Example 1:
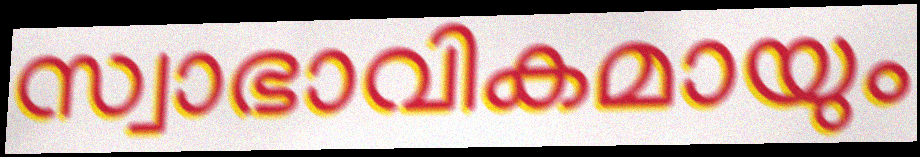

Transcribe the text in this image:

സ്വാഭാവികമായും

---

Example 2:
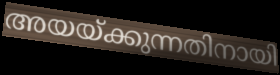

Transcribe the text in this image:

അയയ്ക്കുന്നതിനായി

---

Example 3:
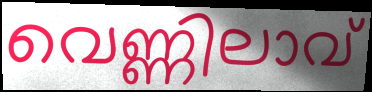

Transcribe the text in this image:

വെണ്ണിലാവ്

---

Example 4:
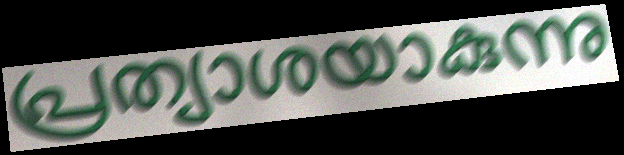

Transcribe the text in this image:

പ്രത്യാശയാകുന്നു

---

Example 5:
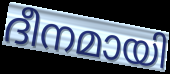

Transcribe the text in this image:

ദീനമായി